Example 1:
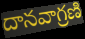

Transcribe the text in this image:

దానవాగ్రణి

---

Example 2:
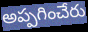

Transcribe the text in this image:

అప్పగించేరు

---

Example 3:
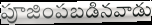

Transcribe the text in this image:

పూజింపబడినవాడు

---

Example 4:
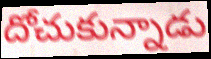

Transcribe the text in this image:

దోచుకున్నాడు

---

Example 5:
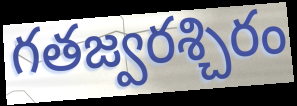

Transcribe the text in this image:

గతజ్వరశ్చిరం